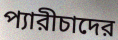
প্যারীচাদের